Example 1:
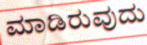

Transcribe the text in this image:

ಮಾಡಿರುವುದು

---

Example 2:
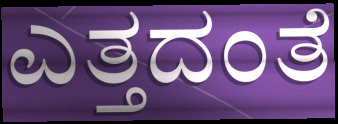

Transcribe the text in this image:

ಎತ್ತದಂತೆ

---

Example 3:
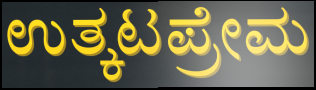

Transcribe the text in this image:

ಉತ್ಕಟಪ್ರೇಮ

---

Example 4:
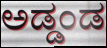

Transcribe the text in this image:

ಅಡ್ಡಂಡ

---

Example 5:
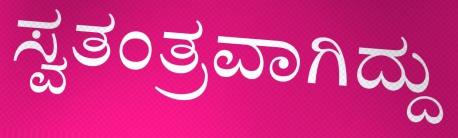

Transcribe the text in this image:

ಸ್ವತಂತ್ರವಾಗಿದ್ದು